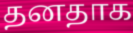
தனதாக